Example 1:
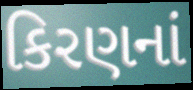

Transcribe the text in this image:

કિરણનાં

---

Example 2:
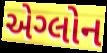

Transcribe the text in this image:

એગ્લોન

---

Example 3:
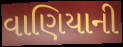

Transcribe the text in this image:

વાણિયાની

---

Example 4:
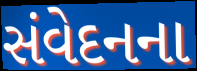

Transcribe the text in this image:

સંવેદનના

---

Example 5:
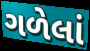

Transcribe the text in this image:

ગળેલાં